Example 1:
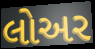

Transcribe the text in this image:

લોઅર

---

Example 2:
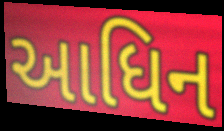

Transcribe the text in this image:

આધિન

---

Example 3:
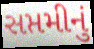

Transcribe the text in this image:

સપ્તમીનું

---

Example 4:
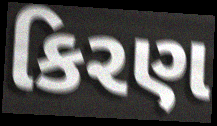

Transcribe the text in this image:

કિરણ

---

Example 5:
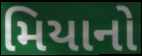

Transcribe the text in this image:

મિયાનો